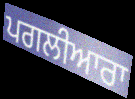
ਪਗਲੀਆਰਾ